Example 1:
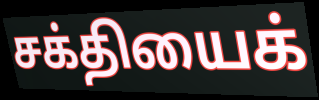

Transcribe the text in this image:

சக்தியைக்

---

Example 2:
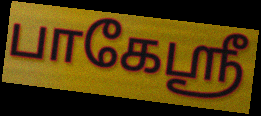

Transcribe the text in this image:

பாகேஸ்ரீ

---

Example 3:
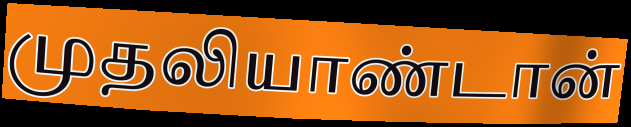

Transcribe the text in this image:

முதலியாண்டான்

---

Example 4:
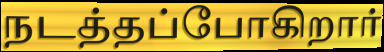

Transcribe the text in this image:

நடத்தப்போகிறார்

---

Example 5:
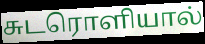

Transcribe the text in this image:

சுடரொளியால்